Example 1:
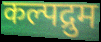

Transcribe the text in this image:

कल्पद्रुम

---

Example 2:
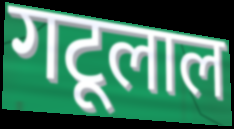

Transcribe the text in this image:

गटूलाल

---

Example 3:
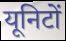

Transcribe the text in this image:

यूनिटों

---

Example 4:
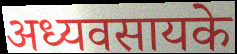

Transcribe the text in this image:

अध्यवसायके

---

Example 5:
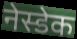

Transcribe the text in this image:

नेस्डेक